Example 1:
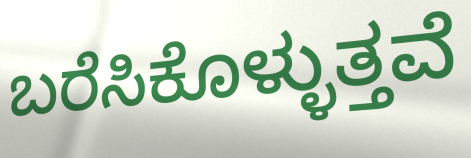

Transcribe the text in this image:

ಬರೆಸಿಕೊಳ್ಳುತ್ತವೆ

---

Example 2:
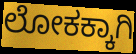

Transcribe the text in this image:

ಲೋಕಕ್ಕಾಗಿ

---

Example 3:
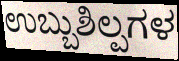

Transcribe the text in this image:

ಉಬ್ಬುಶಿಲ್ಪಗಳ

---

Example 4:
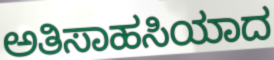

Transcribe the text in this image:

ಅತಿಸಾಹಸಿಯಾದ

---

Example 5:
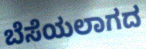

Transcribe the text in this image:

ಬೆಸೆಯಲಾಗದ